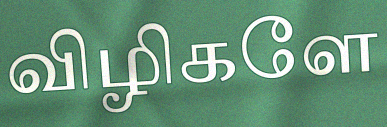
விழிகளே